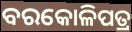
ବରକୋଳିପତ୍ର